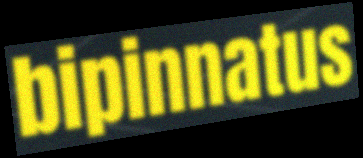
bipinnatus